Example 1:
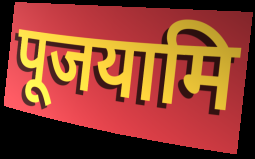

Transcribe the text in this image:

पूजयामि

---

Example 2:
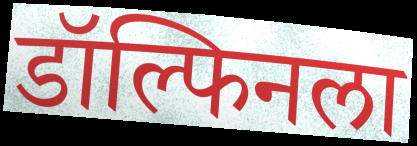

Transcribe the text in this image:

डॉल्फिनला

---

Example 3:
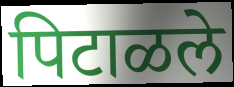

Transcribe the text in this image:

पिटाळले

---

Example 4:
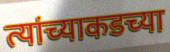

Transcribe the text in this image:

त्यांच्याकडच्या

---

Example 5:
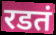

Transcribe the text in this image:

रडतं